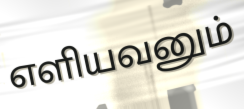
எளியவனும்